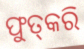
ଫୁତ୍‌କରି